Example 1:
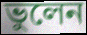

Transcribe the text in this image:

ভুলেন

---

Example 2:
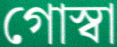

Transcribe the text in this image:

গোস্বা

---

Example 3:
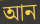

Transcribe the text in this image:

আন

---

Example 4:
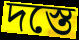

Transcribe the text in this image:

দস্তে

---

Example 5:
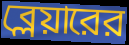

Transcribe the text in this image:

ব্লেয়ারের